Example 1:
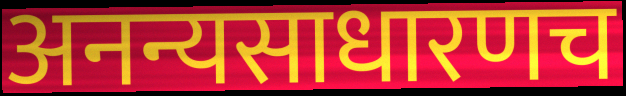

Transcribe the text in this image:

अनन्यसाधारणच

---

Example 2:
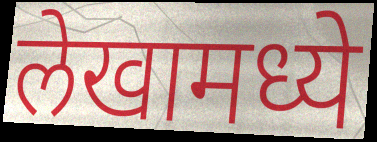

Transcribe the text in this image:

लेखामध्ये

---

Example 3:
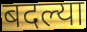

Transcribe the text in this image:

बदल्या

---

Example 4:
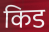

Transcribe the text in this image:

किड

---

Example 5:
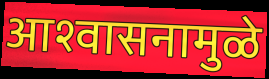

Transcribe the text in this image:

आश्वासनामुळे